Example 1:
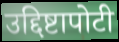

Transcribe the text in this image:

उद्दिष्टापोटी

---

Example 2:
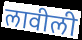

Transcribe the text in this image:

लावीली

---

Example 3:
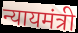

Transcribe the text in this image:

न्यायमंत्री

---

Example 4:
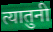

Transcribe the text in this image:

त्यातुनी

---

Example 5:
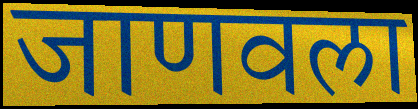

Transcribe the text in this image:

जाणवला